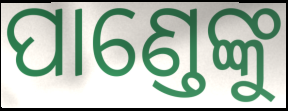
ପାଣ୍ଡେଙ୍କୁ